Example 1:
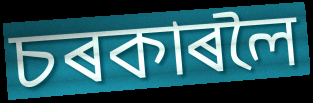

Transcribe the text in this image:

চৰকাৰলৈ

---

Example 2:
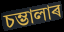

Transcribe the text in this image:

চম্ভালাৰ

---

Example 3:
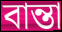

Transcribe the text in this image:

বান্তা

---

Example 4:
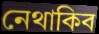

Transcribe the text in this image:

নেথাকিব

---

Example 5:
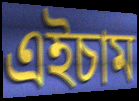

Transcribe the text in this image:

এইচাম